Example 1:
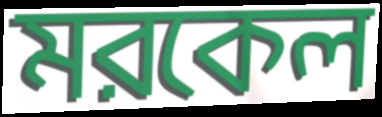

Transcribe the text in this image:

মরকেল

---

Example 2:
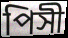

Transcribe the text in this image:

পিসী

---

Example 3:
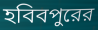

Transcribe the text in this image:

হবিবপুরের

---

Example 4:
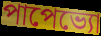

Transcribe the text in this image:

পাপেভ্যো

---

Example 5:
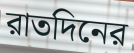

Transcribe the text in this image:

রাতদিনের